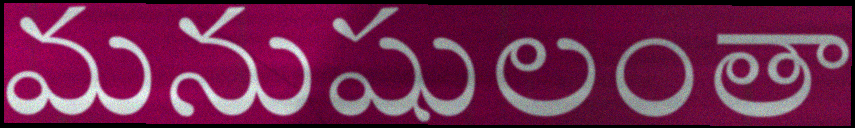
మనుషులంతా